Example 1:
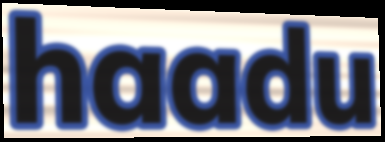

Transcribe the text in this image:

haadu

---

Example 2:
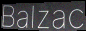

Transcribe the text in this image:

Balzac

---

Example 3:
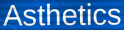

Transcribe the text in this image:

Asthetics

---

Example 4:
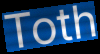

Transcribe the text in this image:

Toth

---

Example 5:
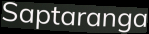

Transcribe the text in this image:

Saptaranga